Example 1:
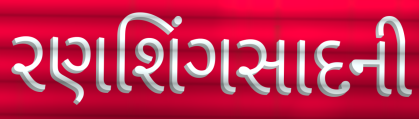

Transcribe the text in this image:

રણશિંગસાદની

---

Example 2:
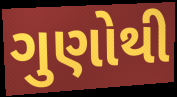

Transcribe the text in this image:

ગુણોથી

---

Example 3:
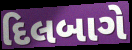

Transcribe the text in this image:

દિલબાગે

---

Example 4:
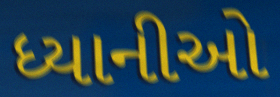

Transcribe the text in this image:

ધ્યાનીઓ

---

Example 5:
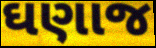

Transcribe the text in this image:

ઘણાજ